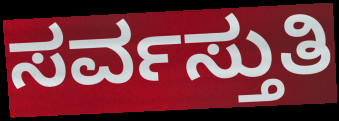
ಸರ್ವಸ್ತುತಿ